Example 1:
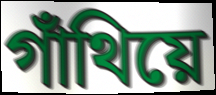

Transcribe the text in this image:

গাঁথিয়ে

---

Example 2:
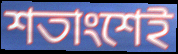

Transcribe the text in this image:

শতাংশেই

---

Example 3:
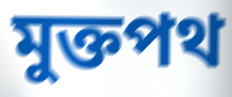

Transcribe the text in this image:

মুক্তপথ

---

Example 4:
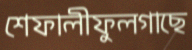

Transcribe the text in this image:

শেফালীফুলগাছে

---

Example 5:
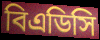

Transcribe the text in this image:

বিএডিসি